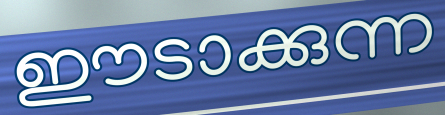
ഈടാക്കുന്ന